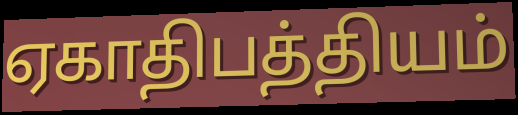
ஏகாதிபத்தியம்